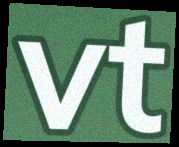
vt